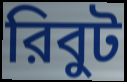
রিবুট